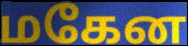
மகேன